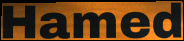
Hamed